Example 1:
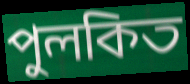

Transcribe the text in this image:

পুলকিত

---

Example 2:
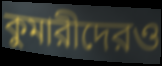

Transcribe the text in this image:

কুমারীদেরও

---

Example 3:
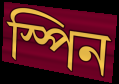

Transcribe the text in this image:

স্পিন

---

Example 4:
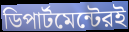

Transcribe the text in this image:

ডিপার্টমেন্টেরই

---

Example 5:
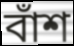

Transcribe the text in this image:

বাঁশ